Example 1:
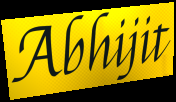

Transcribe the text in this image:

Abhijit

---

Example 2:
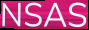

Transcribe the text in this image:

NSAS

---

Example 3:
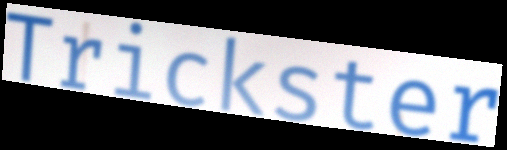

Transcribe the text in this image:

Trickster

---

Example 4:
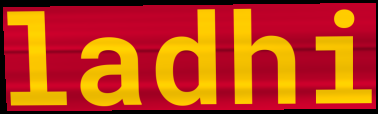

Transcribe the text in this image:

ladhi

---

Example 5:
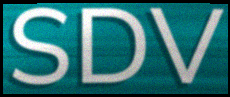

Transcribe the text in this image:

SDV